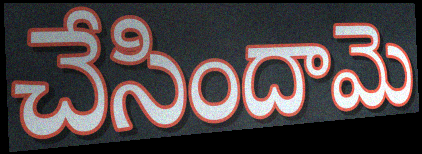
చేసిందామె